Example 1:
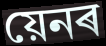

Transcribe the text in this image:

য়েনৰ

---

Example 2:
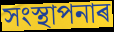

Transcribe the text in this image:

সংস্থাপনাৰ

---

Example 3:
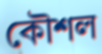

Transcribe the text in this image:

কৌশল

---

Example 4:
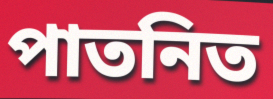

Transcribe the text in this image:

পাতনিত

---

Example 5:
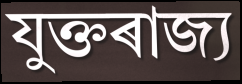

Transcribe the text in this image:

যুক্তৰাজ্য